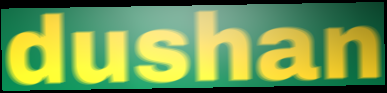
dushan